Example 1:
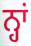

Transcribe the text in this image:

ਨ੍ਹਾਂ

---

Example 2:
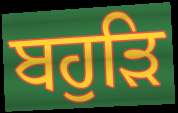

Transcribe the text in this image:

ਬਹੁੜਿ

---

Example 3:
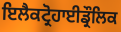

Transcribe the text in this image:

ਇਲੈਕਟ੍ਰੋਹਾਈਡ੍ਰੌਲਿਕ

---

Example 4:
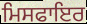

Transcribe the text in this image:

ਮਿਸਫਾਇਰ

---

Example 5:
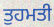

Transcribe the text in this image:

ਤੁਹਮਤੀ